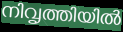
നിവൃത്തിയിൽ